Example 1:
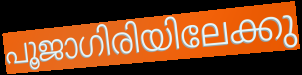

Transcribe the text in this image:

പൂജാഗിരിയിലേക്കു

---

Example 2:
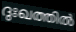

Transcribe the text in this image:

ദുഃഖത്തിൽ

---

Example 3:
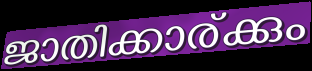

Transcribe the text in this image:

ജാതിക്കാര്ക്കും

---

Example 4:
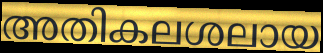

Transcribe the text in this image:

അതികലശലായ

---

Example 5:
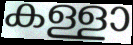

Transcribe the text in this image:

കള്ളാ